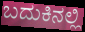
ಬದುಕಿನಲ್ಲಿ